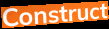
Construct